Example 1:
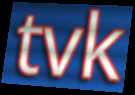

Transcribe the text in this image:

tvk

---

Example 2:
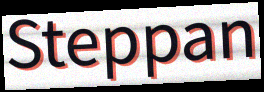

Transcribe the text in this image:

Steppan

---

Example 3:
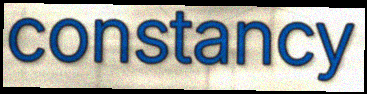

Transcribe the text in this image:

constancy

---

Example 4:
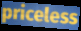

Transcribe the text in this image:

priceless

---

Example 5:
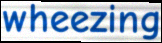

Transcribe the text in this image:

wheezing